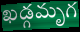
ఖడ్గమృగ